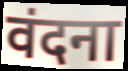
वंदना